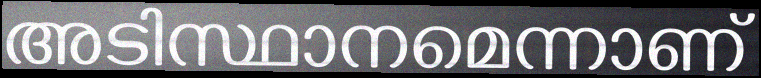
അടിസ്ഥാനമെന്നാണ്